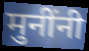
मुनींनी